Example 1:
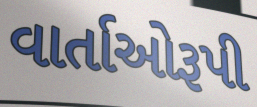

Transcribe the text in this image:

વાર્તાઓરૂપી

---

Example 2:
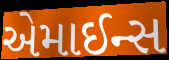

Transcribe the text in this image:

એમાઈન્સ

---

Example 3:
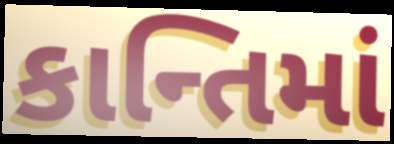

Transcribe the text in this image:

કાન્તિમાં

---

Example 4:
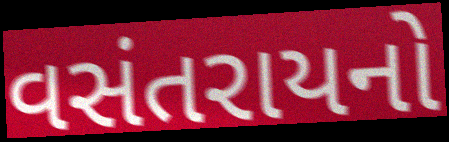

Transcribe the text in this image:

વસંતરાયનો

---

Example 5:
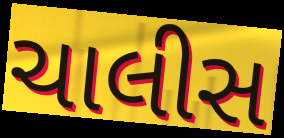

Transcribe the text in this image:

ચાલીસ